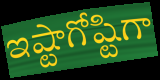
ఇష్టాగోష్టిగా